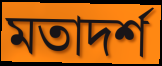
মতাদৰ্শ